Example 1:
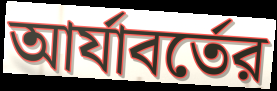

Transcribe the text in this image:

আর্যাবর্তের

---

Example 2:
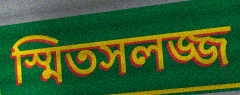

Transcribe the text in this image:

স্মিতসলজ্জ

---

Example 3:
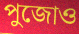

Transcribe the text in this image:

পুজোও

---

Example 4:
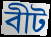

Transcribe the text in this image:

বীট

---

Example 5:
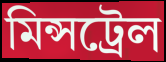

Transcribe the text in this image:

মিন্সট্রেল